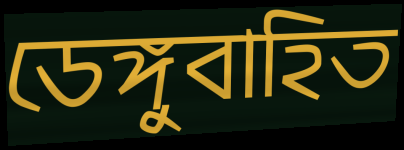
ডেঙ্গুবাহিত